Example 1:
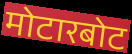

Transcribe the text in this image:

मोटारबोट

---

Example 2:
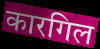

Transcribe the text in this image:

कारगिल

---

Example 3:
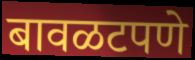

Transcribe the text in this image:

बावळटपणे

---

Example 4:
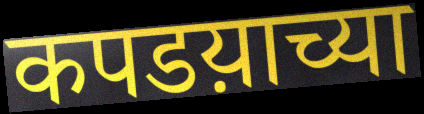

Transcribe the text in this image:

कपडय़ाच्या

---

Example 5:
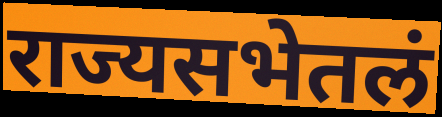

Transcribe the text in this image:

राज्यसभेतलं